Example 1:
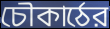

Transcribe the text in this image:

চৌকাঠের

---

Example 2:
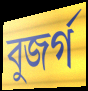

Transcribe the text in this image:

বুজর্গ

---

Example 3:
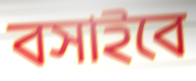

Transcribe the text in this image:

বসাইবে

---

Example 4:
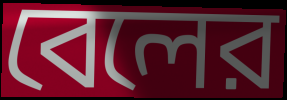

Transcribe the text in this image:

বেলের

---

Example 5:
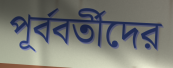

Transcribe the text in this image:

পূর্ববর্তীদের